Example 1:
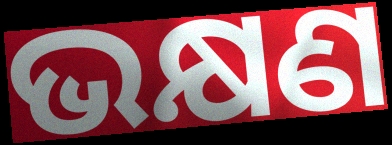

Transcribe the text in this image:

ଭକ୍ଷଣ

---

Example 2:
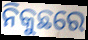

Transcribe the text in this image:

ନିକୁଛରେ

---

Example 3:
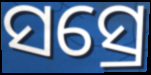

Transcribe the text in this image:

ସସ୍ରେ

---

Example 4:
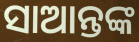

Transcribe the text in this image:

ସାଆନ୍ତଙ୍କ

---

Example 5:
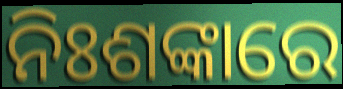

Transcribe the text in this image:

ନିଃଶଙ୍କାରେ